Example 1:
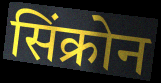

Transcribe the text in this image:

सिंक्रोन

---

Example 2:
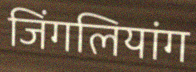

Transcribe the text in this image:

जिंगलियांग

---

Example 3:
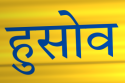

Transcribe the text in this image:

हुसोव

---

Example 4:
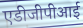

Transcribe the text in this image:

एडीजीपीआई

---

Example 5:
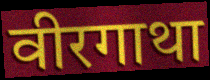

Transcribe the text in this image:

वीरगाथा